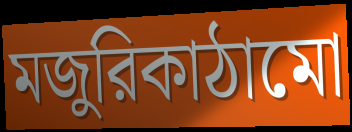
মজুরিকাঠামো